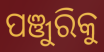
ପଞ୍ଜୁରିକୁ